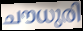
ചൗധുരി